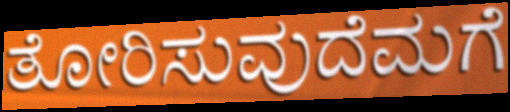
ತೋರಿಸುವುದೆಮಗೆ